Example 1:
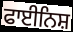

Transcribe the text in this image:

ਫਾਈਨਿਸ਼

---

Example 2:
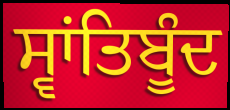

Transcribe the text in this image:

ਸ੍ਵਾਂਤਿਬੂੰਦ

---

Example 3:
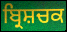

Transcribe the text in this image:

ਬ੍ਰਿਸ਼ਚਕ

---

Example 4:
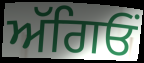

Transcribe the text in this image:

ਅੱਗਿਓਂ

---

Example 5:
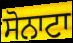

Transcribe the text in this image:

ਸੋਨਾਟਾ